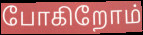
போகிறோம்